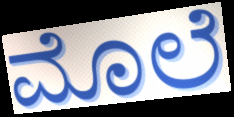
ಮೊಲೆ